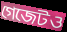
গেজেটও